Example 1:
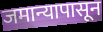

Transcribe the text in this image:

जमान्यापासून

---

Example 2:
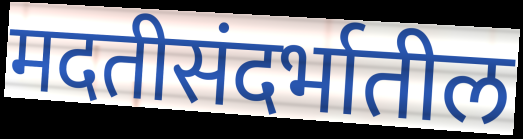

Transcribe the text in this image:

मदतीसंदर्भातील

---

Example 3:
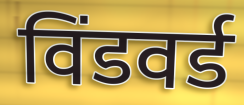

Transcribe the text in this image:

विंडवर्ड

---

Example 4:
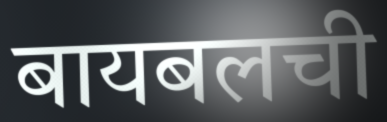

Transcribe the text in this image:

बायबलची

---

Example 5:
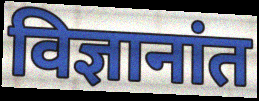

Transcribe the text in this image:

विज्ञानांत